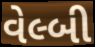
વેલ્બી